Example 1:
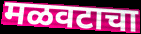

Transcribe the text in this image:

मळवटाचा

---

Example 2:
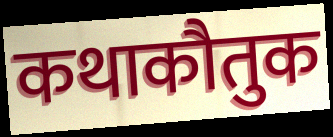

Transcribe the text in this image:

कथाकौतुक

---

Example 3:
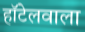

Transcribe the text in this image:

हॉटेलवाला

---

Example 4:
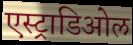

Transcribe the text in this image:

एस्ट्राडिओल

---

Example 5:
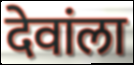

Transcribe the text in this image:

देवांला